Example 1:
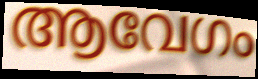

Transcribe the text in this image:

ആവേഗം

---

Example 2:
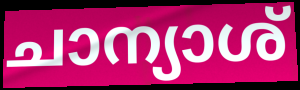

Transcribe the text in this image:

ചാന്യാശ്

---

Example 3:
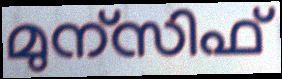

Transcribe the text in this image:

മുന്സിഫ്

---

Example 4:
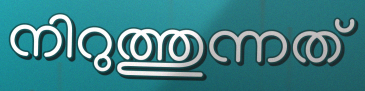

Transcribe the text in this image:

നിറുത്തുന്നത്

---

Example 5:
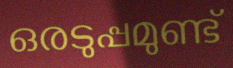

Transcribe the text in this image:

ഒരടുപ്പമുണ്ട്